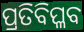
ପ୍ରତିବିପ୍ଳବ